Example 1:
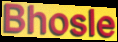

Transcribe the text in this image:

Bhosle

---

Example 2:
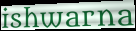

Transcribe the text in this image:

ishwarna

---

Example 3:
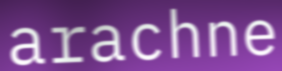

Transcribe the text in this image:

arachne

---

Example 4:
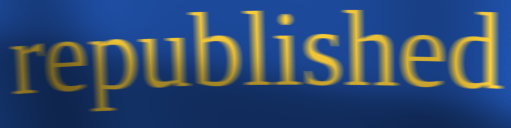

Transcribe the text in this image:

republished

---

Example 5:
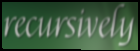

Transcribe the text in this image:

recursively